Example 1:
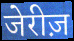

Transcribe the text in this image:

जेरीज़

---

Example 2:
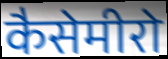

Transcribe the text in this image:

कैसेमीरो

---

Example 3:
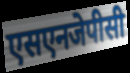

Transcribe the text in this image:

एसएनजेपीसी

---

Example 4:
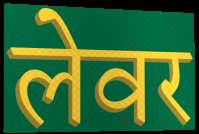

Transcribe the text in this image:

लेवर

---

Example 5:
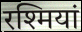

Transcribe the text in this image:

रश्मियां